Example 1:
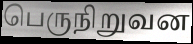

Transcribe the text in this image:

பெருநிறுவன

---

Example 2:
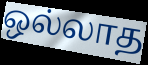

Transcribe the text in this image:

ஒல்லாத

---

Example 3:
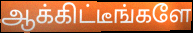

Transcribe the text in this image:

ஆக்கிட்டீங்களே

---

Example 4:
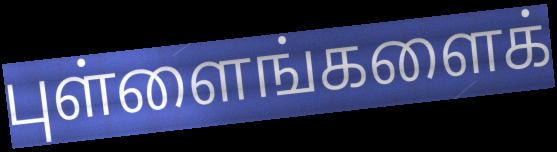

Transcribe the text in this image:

புள்ளைங்களைக்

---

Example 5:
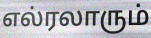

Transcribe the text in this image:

எல்ரலாரும்